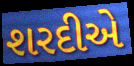
શરદીએ